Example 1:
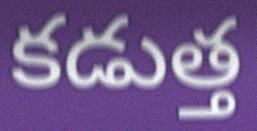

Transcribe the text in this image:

కడుత్త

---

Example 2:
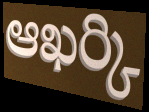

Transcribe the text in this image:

ఆఖర్కి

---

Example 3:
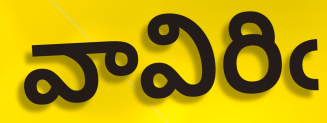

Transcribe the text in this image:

వావిరిఁ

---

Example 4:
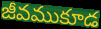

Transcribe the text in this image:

జీవముకూడ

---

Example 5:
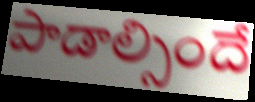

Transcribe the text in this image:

పాడాల్సిందే